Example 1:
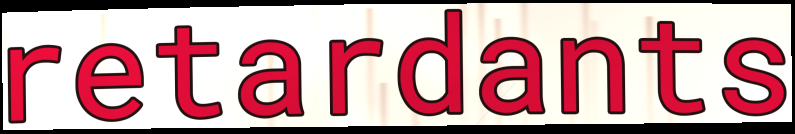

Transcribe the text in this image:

retardants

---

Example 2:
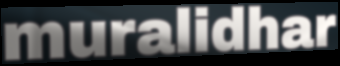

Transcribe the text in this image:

muralidhar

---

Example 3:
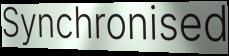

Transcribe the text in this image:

Synchronised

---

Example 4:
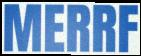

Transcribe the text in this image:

MERRF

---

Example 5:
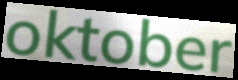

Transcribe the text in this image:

oktober